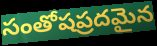
సంతోషప్రదమైన